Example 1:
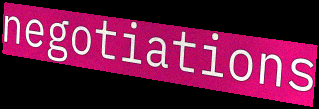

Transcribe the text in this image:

negotiations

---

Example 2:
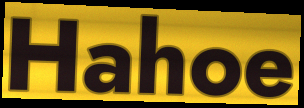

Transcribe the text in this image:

Hahoe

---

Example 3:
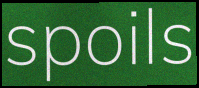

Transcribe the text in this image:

spoils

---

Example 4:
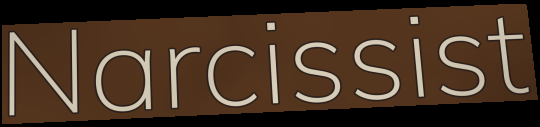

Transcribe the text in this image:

Narcissist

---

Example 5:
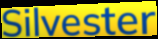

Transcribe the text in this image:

Silvester